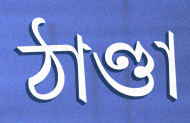
ঠাণ্ডা